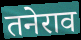
तनेराव